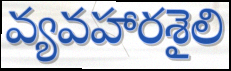
వ్యవహారశైలి